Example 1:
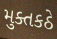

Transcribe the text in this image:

મુક્તકઠે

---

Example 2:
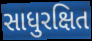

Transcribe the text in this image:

સાધુરક્ષિત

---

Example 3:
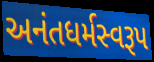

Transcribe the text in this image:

અનંતધર્મસ્વરૂપ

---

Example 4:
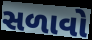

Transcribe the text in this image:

સળાવો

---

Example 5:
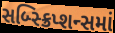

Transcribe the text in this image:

સબ્સ્ક્રિપ્શન્સમાં